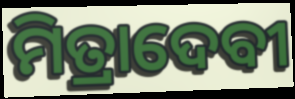
ମିତ୍ରାଦେବୀ